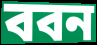
ববন